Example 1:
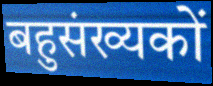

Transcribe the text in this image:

बहुसंख्यकों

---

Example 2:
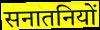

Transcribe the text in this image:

सनातनियों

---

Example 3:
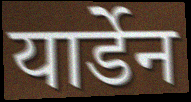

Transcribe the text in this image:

यार्डेन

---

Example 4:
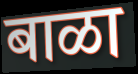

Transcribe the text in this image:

बाळा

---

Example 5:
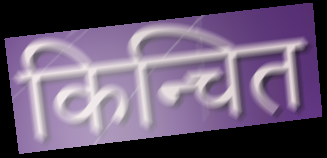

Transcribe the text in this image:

किन्चित